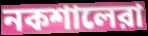
নকশালেরা